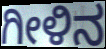
ಗೀಳಿನ